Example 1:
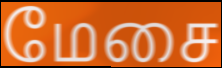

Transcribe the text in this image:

மேசை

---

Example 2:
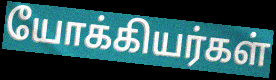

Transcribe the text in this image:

யோக்கியர்கள்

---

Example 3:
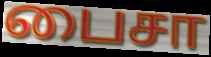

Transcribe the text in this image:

பைசா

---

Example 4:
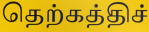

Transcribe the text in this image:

தெற்கத்திச்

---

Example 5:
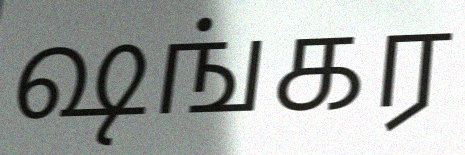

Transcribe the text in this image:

ஷங்கர